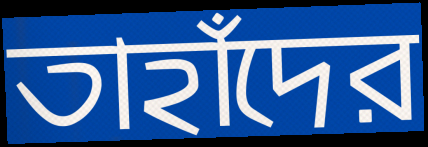
তাহাঁদের